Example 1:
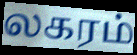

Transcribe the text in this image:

லகரம்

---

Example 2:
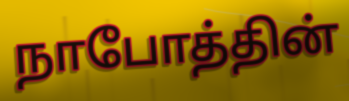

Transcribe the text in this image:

நாபோத்தின்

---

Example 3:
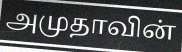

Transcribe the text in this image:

அமுதாவின்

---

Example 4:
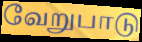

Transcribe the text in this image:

வேறுபாடு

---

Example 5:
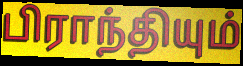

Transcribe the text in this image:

பிராந்தியும்